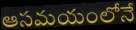
ఆసమయంలోనే